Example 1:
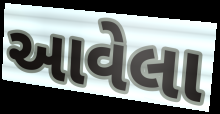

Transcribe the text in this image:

આવેલા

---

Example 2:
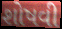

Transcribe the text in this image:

શોષવી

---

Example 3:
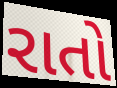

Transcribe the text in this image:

રાતો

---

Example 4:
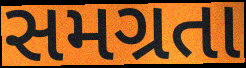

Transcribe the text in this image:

સમગ્રતા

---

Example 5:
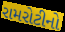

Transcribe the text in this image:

રામરોટીનો